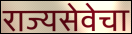
राज्यसेवेचा